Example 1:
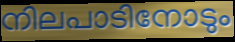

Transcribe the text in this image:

നിലപാടിനോടും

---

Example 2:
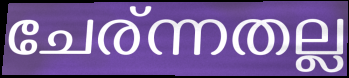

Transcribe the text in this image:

ചേര്ന്നതല്ല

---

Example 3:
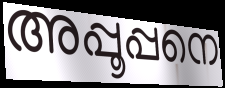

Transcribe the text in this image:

അപ്പൂപ്പനെ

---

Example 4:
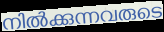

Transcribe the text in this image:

നിൽക്കുന്നവരുടെ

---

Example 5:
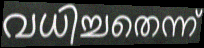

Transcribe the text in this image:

വധിച്ചതെന്ന്